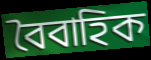
বৈবাহিক